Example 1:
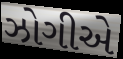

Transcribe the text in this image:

ઝોગીએ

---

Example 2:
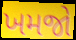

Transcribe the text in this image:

ખમજો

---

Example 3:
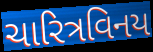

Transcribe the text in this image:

ચારિત્રવિનય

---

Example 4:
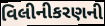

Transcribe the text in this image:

વિલીનીકરણની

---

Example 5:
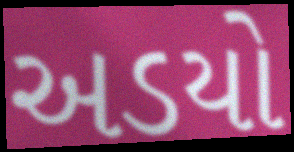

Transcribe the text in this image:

અડયો